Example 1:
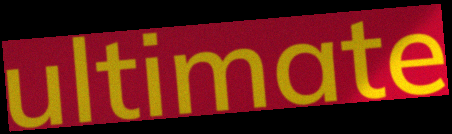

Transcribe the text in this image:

ultimate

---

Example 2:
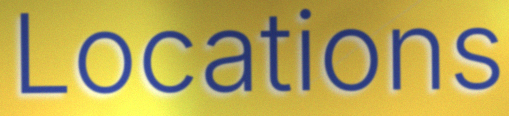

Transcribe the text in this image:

Locations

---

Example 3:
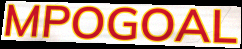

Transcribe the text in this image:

MPOGOAL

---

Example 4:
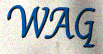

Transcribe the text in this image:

WAG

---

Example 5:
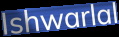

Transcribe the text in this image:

Ishwarlal